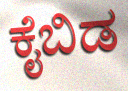
ಕೈಬಿಡ